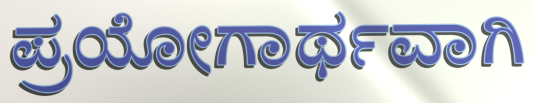
ಪ್ರಯೋಗಾರ್ಥವಾಗಿ